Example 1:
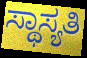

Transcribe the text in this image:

ಸ್ಥಾಸ್ಯತಿ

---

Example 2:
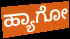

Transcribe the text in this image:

ಹ್ಯಾಗೋ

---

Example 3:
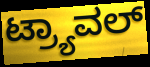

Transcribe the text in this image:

ಟ್ರ್ಯಾವಲ್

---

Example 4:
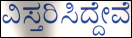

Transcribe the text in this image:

ವಿಸ್ತರಿಸಿದ್ದೇವೆ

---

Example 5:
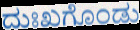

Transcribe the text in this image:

ದುಃಖಗೊಂಡು